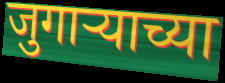
जुगाऱ्याच्या